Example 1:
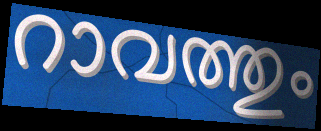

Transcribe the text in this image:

റാവത്തും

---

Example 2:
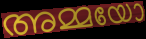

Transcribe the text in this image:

അമ്മയോ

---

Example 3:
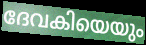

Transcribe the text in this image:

ദേവകിയെയും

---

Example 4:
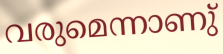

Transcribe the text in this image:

വരുമെന്നാണു്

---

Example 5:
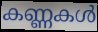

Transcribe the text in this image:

കണ്ണകൾ